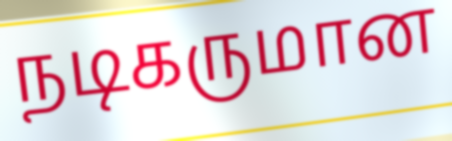
நடிகருமான